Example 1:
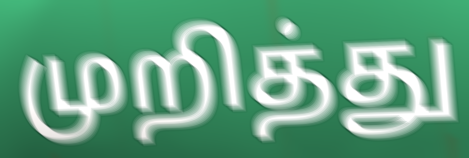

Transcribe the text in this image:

முறித்து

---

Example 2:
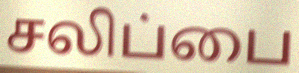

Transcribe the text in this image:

சலிப்பை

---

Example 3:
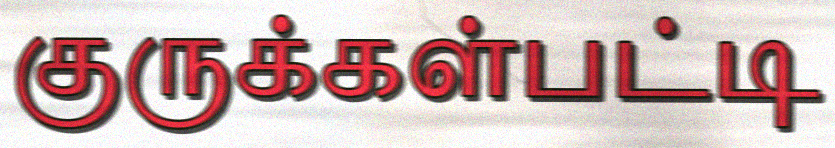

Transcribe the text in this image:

குருக்கள்பட்டி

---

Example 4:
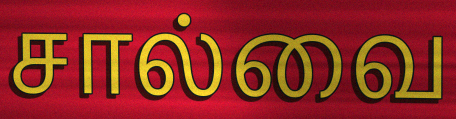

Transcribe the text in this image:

சால்வை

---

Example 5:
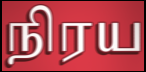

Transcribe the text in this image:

நிரய